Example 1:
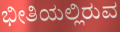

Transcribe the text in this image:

ಭೀತಿಯಲ್ಲಿರುವ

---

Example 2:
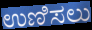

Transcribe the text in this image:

ಉಣಿಸಲು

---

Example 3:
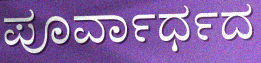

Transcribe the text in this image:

ಪೂರ್ವಾರ್ಧದ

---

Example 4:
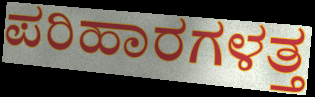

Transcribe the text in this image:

ಪರಿಹಾರಗಳತ್ತ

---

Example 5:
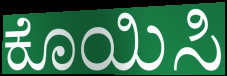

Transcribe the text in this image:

ಕೊಯಿಸಿ